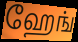
ஹேங்